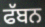
ਫੱਬਨ